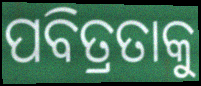
ପବିତ୍ରତାକୁ